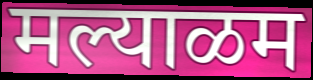
मल्याळम